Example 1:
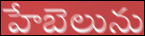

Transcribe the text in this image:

హేబెలును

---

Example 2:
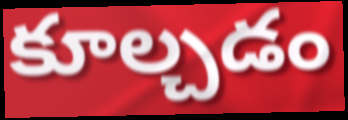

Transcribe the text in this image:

కూల్చడం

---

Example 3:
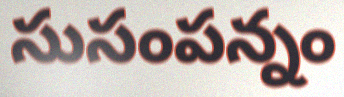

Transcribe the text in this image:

సుసంపన్నం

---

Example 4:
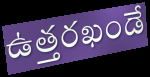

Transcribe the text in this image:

ఉత్తరఖండే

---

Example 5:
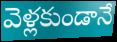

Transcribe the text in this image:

వెళ్లకుండానే